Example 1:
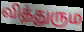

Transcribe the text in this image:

வித்துரும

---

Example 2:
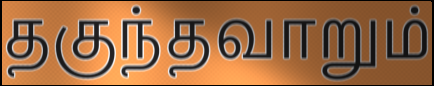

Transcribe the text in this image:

தகுந்தவாறும்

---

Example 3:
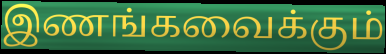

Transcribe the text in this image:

இணங்கவைக்கும்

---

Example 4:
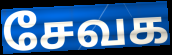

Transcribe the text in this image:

சேவக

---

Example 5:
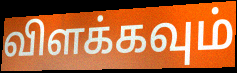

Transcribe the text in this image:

விளக்கவும்